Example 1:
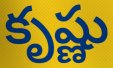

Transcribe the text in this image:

కృష్ణు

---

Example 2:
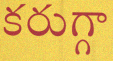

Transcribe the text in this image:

కరుగ్గా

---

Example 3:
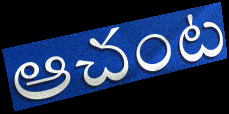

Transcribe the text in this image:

ఆచంట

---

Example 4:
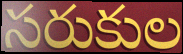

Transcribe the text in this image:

సరుకుల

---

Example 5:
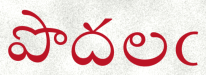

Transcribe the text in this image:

పొదలఁ